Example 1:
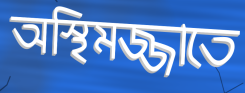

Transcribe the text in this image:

অস্থিমজ্জাতে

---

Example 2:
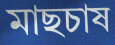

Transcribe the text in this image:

মাছচাষ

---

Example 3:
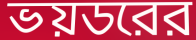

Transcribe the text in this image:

ভয়ডরের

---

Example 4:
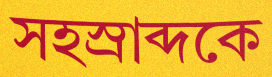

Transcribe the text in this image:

সহস্রাব্দকে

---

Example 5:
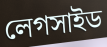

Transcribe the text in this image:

লেগসাইড